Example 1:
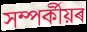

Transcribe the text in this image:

সম্পৰ্কীয়ৰ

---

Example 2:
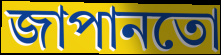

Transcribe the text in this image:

জাপানতো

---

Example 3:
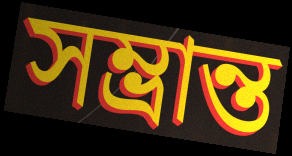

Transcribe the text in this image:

সম্ভ্ৰান্ত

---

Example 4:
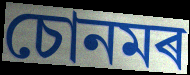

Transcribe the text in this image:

চোনমৰ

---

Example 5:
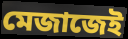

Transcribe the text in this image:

মেজাজেই